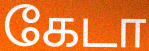
கேடா